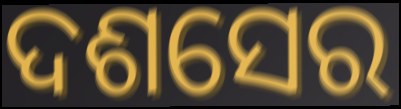
ଦଶସେର